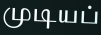
முடியப்